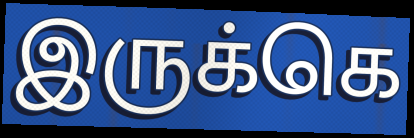
இருக்கெ